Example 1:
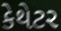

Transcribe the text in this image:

કેથેટર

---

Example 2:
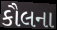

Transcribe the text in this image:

કૌલના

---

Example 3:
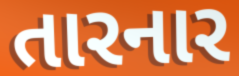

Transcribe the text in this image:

તારનાર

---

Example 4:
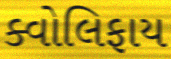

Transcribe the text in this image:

ક્વોલિફાય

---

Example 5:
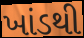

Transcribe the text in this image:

ખાંડથી